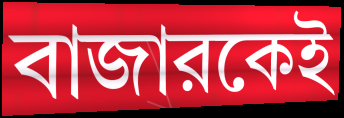
বাজারকেই